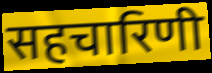
सहचारिणी